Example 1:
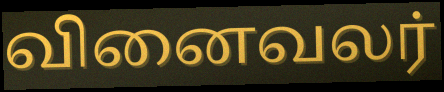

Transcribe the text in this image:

வினைவலர்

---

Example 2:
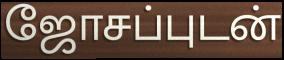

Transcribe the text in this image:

ஜோசப்புடன்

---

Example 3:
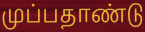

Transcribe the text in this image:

முப்பதாண்டு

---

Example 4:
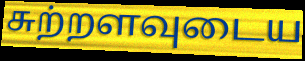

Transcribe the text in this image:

சுற்றளவுடைய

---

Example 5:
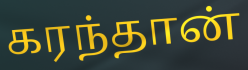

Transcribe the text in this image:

கரந்தான்